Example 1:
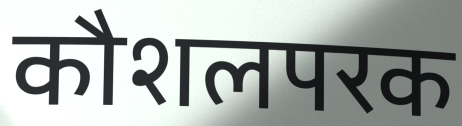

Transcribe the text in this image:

कौशलपरक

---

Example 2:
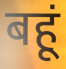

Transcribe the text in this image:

बहूं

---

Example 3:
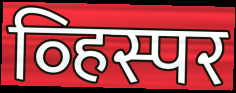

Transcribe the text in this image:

व्हिस्पर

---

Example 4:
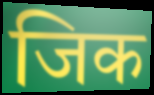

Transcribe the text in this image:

जिक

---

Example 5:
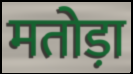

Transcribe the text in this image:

मतोड़ा